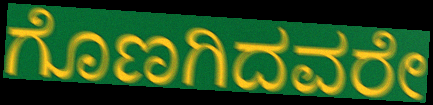
ಗೊಣಗಿದವರೇ